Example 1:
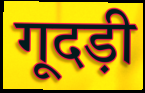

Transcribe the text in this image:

गूदड़ी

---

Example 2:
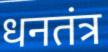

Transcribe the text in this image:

धनतंत्र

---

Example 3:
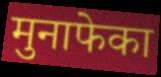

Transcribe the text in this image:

मुनाफेका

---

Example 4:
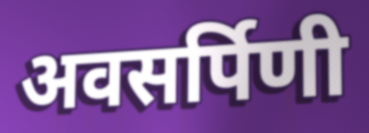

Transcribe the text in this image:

अवसर्पिणी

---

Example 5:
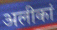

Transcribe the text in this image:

अलीकां